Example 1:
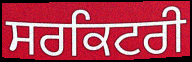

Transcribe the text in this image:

ਸਰਕਿਟਰੀ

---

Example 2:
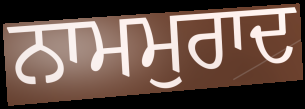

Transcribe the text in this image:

ਨਾਮਮੁਰਾਦ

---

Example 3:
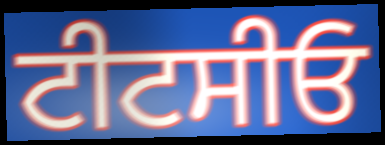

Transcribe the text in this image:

ਟੀਟਸੀਓ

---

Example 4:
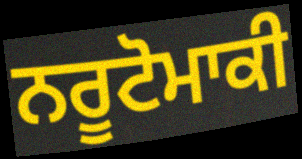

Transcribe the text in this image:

ਨਰੂਟੋਮਾਕੀ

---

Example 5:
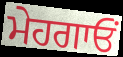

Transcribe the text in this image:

ਮੇਹਗਾਓਂ